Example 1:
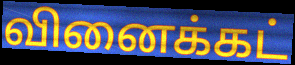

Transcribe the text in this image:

வினைக்கட்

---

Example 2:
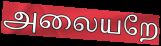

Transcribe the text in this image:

அலையறே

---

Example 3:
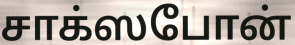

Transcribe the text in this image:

சாக்ஸபோன்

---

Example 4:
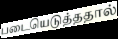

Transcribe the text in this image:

படையெடுத்ததால்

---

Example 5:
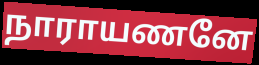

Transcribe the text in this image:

நாராயணனே